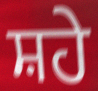
ਸ਼ਹੇ